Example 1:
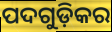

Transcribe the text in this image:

ପଦଗୁଡ଼ିକର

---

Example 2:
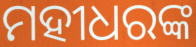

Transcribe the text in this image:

ମହୀଧରଙ୍କ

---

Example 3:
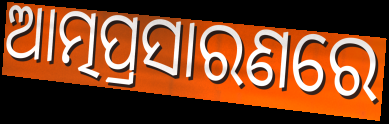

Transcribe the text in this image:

ଆତ୍ମପ୍ରସାରଣରେ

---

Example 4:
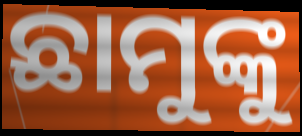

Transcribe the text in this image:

ଛାମୁଙ୍କୁ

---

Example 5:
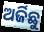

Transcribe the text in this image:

ଅର୍ଜିଛୁ